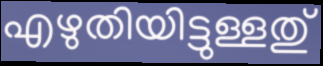
എഴുതിയിട്ടുള്ളതു്